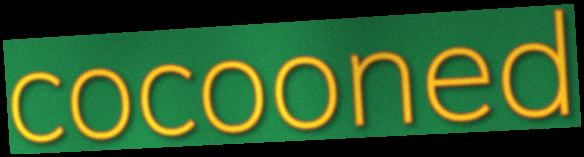
cocooned